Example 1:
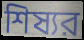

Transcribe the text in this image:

শিষ্যর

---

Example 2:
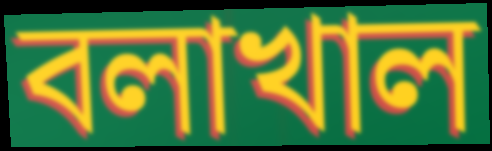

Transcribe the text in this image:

বলাখাল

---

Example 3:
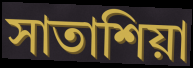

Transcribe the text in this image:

সাতাশিয়া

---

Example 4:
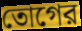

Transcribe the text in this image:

তোগের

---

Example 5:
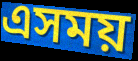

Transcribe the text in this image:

এসময়